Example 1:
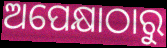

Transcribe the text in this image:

ଅପେକ୍ଷାଠାରୁ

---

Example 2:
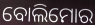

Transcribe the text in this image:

ବୋଲିମୋର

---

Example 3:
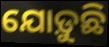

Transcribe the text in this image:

ଯୋଡ଼ୁଛି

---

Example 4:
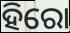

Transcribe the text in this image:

ହିରୋ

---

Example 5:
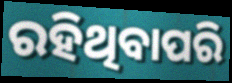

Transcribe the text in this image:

ରହିଥିବାପରି